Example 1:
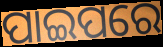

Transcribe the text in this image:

ପାଇପରେ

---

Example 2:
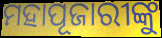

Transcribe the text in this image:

ମହାପୂଜାରୀଙ୍କୁ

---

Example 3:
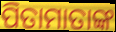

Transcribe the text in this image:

ପିତାମାତାଙ୍କ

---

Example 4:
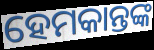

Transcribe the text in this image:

ହେମକାନ୍ତଙ୍କ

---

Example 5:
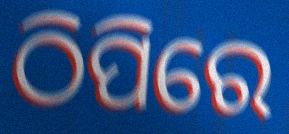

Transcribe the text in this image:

ଠିପିରେ